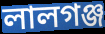
লালগঞ্জ